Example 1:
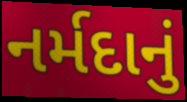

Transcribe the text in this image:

નર્મદાનું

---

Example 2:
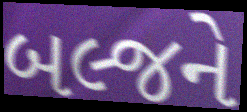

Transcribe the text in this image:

બલ્જને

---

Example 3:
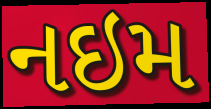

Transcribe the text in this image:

નઇમ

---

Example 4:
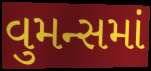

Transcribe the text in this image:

વુમન્સમાં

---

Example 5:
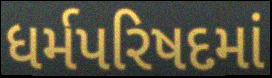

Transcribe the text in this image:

ધર્મપરિષદમાં